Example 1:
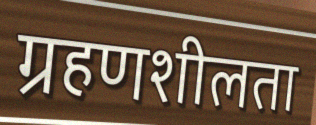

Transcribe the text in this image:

ग्रहणशीलता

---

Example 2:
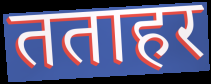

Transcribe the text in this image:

तताहर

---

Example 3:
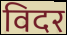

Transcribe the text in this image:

विदर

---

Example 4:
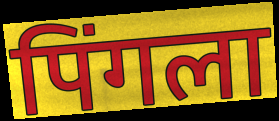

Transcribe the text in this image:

पिंगला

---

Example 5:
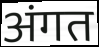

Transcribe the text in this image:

अंगत